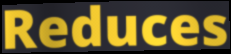
Reduces